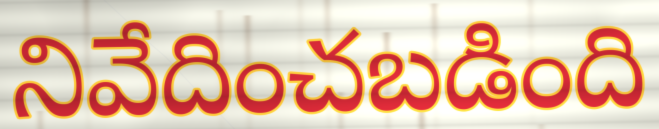
నివేదించబడింది